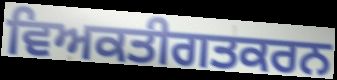
ਵਿਅਕਤੀਗਤਕਰਨ